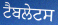
ਟੈਬਲੇਟਸ